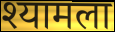
श्यामला